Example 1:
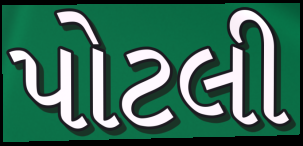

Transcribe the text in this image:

પોટલી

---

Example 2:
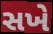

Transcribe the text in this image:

સખે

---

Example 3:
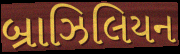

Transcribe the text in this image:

બ્રાઝિલિયન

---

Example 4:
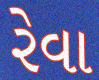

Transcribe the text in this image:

રેવા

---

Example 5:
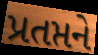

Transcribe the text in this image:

પ્રતપ્તને